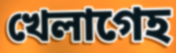
খেলাগেহ